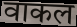
वाकल